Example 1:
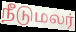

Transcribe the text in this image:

நீடுமலர்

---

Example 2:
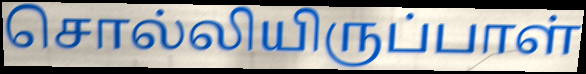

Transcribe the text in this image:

சொல்லியிருப்பாள்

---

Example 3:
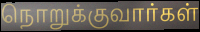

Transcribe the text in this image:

நொறுக்குவார்கள்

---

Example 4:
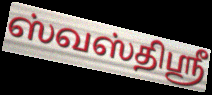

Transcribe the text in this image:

ஸ்வஸ்திஸ்ரீ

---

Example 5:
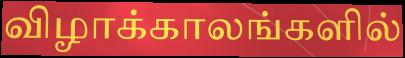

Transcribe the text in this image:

விழாக்காலங்களில்